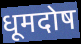
धूमदोष